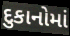
દુકાનોમાં